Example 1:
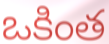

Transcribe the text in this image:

ఒకింత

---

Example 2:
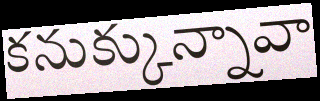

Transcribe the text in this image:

కనుక్కున్నావా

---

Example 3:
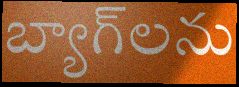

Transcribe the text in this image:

బ్యాగ్‌లను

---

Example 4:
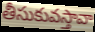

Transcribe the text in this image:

తీసుకువస్తావా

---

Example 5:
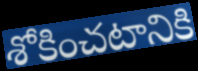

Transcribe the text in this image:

శోకించటానికి